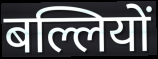
बल्लियों